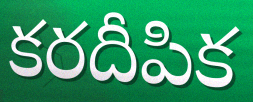
కరదీపిక